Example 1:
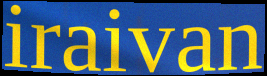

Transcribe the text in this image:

iraivan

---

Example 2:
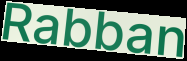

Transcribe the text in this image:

Rabban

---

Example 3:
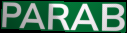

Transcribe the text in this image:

PARAB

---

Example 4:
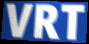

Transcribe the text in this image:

VRT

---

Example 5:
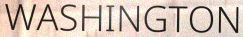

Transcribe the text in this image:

WASHINGTON